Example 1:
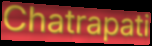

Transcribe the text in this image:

Chatrapati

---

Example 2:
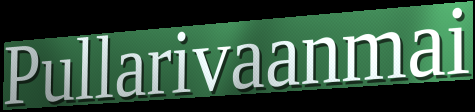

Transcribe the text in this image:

Pullarivaanmai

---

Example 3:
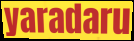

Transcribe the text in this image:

yaradaru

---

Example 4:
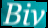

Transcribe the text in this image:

Biv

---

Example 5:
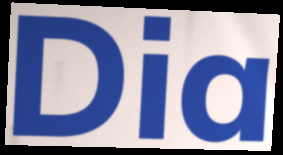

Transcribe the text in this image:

Dia